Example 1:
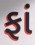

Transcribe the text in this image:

ફાં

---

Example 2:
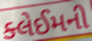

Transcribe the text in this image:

ક્લેઈમની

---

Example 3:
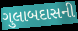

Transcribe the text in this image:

ગુલાબદાસની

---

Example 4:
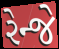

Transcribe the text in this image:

રેન્જે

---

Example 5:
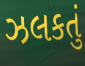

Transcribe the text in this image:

ઝલકતું